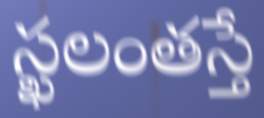
స్ఖలంతస్తే